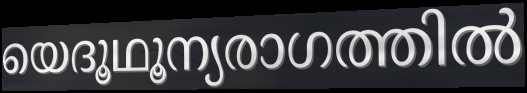
യെദൂഥൂന്യരാഗത്തിൽ